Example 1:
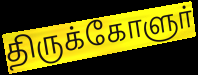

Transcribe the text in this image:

திருக்கோளுர்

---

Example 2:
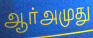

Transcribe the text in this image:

ஆர்அமுது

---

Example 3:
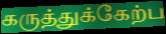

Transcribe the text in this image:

கருத்துக்கேற்ப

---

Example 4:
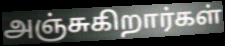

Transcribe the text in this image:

அஞ்சுகிறார்கள்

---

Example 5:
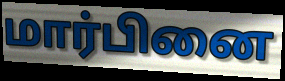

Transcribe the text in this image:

மார்பினை